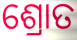
ଶ୍ରୋତ